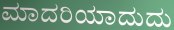
ಮಾದರಿಯಾದುದು